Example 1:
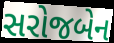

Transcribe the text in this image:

સરોજબેન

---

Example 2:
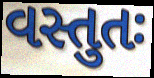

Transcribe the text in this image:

વસ્તુતઃ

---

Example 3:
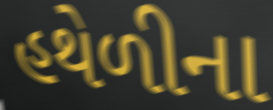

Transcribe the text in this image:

હથેળીના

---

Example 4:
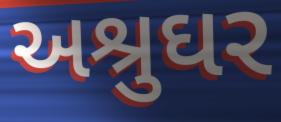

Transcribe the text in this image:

અશ્રુઘર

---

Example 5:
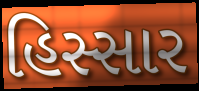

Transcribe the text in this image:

હિસ્સાર